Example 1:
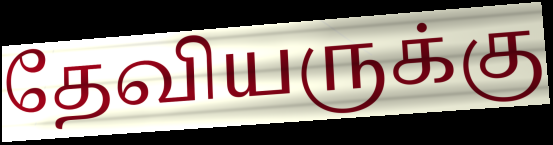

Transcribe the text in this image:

தேவியருக்கு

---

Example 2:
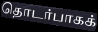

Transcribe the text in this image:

தொடர்பாகக்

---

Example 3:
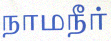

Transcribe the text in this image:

நாமநீர்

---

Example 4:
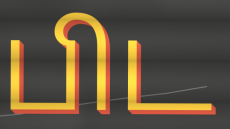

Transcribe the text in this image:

பிட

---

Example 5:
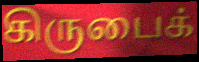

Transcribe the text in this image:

கிருபைக்